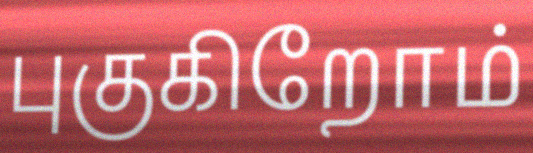
புகுகிறோம்